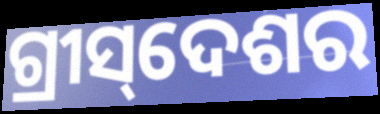
ଗ୍ରୀସ୍‌ଦେଶର